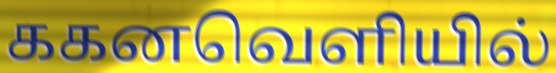
ககனவெளியில்